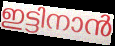
ഇട്ടിനാൻ